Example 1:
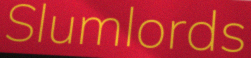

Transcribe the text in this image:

Slumlords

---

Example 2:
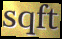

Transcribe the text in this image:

sqft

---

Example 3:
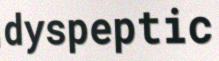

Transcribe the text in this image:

dyspeptic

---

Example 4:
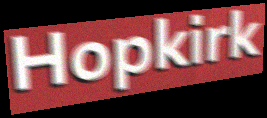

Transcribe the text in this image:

Hopkirk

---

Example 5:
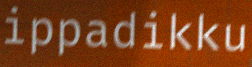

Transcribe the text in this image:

ippadikku